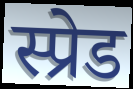
स्प्रेड